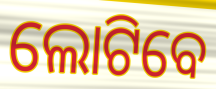
ଲୋଟିବେ